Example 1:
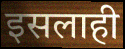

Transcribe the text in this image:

इसलाही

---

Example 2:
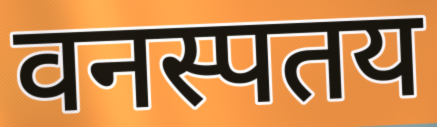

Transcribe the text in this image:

वनस्पतय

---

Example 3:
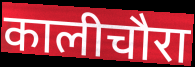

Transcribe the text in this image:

कालीचौरा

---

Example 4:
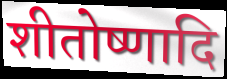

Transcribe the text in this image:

शीतोष्णादि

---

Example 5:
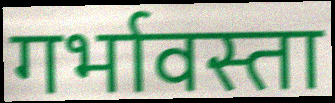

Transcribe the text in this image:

गर्भावस्ता